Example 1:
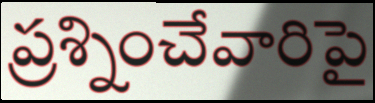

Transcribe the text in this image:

ప్రశ్నించేవారిపై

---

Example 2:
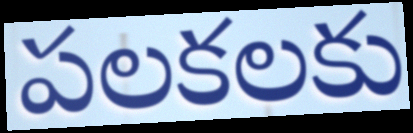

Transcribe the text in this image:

పలకలకు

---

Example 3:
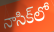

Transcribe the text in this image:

నాసిక్‌లో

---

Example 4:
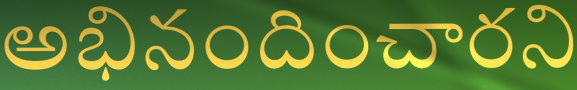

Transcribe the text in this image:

అభినందించారని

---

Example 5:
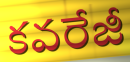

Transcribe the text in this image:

కవరేజీ